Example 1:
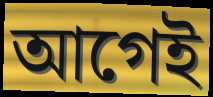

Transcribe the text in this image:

আগেই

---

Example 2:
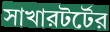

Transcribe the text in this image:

সাখারটর্টের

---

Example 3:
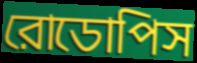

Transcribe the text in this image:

রোডোপিস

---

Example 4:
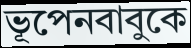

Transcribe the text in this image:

ভূপেনবাবুকে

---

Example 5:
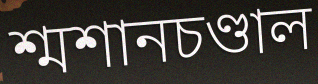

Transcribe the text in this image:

শ্মশানচণ্ডাল